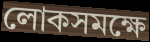
লোকসমক্ষে